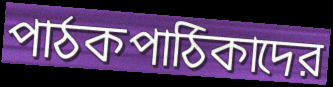
পাঠকপাঠিকাদের